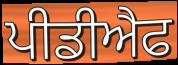
ਪੀਡੀਐਫ